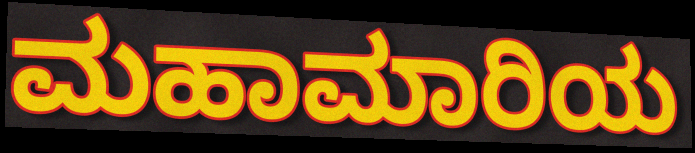
ಮಹಾಮಾರಿಯ